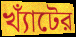
খ্যাঁটের